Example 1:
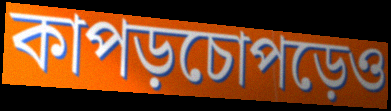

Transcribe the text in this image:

কাপড়চোপড়েও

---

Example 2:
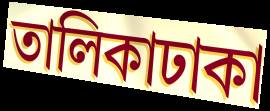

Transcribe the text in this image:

তালিকাঢাকা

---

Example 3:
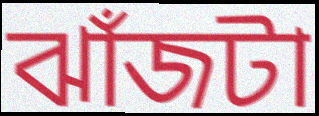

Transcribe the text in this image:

ঝাঁজটা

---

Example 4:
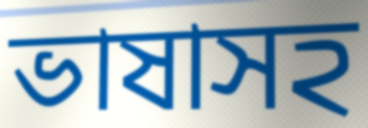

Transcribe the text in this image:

ভাষাসহ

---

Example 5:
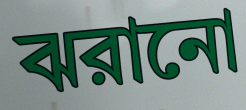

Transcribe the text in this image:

ঝরানো